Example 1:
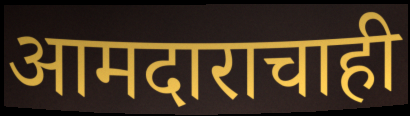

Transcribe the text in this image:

आमदाराचाही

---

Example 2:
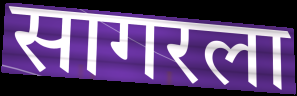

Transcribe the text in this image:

सागरला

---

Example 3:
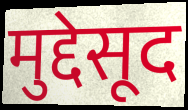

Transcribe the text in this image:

मुद्देसूद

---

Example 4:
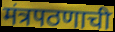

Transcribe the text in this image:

मंत्रपठणाची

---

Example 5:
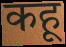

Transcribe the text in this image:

कहू